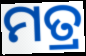
ମତ୍ର